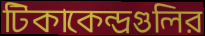
টিকাকেন্দ্রগুলির